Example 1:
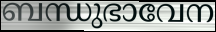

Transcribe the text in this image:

ബന്ധുഭാവേന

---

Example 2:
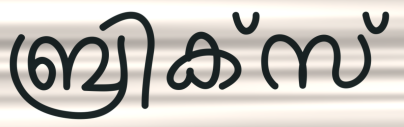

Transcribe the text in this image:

ബ്രിക്സ്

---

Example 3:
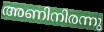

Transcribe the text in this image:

അണിനിരന്നു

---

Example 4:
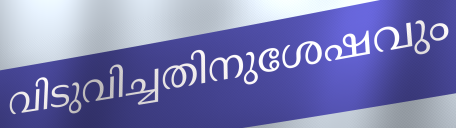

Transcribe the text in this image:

വിടുവിച്ചതിനുശേഷവും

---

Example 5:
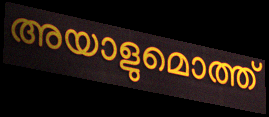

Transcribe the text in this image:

അയാളുമൊത്ത്